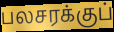
பலசரக்குப்